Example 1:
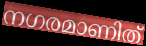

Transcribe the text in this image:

നഗരമാണിത്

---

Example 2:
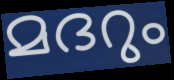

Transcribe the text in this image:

മദറും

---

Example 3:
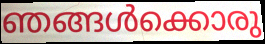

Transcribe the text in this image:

ഞങ്ങൾക്കൊരു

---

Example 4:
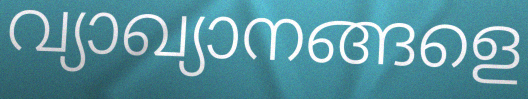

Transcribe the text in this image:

വ്യാഖ്യാനങ്ങളെ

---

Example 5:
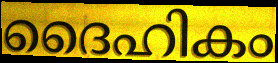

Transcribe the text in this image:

ദൈഹികം